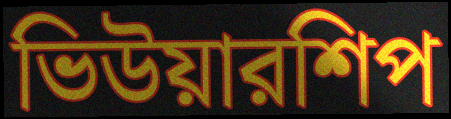
ভিউয়ারশিপ